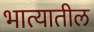
भात्यातील